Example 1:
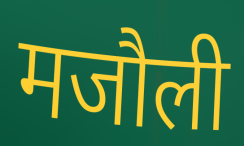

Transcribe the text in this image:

मजौली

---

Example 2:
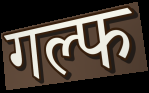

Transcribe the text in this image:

गल्फ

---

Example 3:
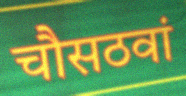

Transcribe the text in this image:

चौसठवां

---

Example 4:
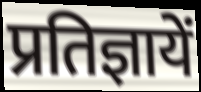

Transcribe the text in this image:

प्रतिज्ञायें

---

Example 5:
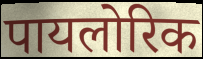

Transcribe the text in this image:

पायलोरिक